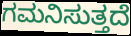
ಗಮನಿಸುತ್ತದೆ